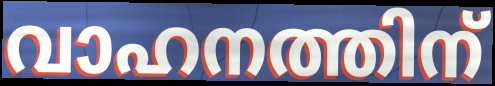
വാഹനത്തിന്